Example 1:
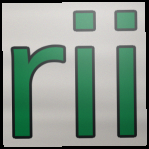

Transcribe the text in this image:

rii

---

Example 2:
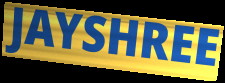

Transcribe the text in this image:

JAYSHREE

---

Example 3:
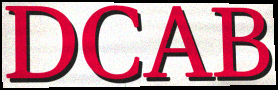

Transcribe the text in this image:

DCAB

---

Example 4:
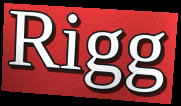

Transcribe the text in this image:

Rigg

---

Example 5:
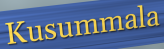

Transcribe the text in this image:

Kusummala